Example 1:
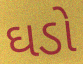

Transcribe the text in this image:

ઘડો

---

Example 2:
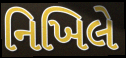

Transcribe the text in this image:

નિખિલે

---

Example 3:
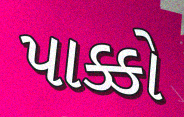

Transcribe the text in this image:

પાક્કો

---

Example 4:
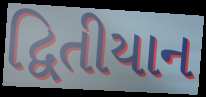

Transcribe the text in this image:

દ્વિતીયાન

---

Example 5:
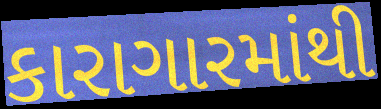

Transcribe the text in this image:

કારાગારમાંથી